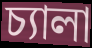
চ্যালা